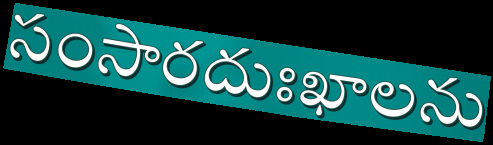
సంసారదుఃఖాలను